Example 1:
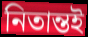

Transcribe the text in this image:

নিতান্তই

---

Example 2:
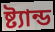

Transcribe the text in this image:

ষ্ট্যান্ড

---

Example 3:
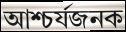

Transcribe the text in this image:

আশ্চর্যজনক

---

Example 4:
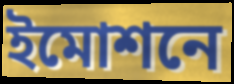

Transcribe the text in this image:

ইমোশনে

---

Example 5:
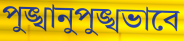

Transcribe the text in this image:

পুঙ্খানুপুঙ্খভাবে